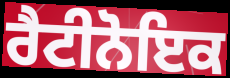
ਰੈਟੀਨੋਇਕ